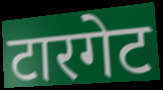
टारगेट